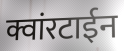
क्वांरटाईन